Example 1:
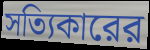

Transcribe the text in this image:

সত্যিকারের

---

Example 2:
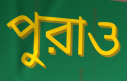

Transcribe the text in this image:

পুরাও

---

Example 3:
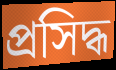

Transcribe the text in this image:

প্রসিদ্ধ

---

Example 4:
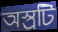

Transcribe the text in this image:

অস্ত্রটি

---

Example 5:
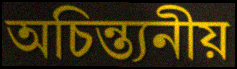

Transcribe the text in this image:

অচিন্ত্যনীয়